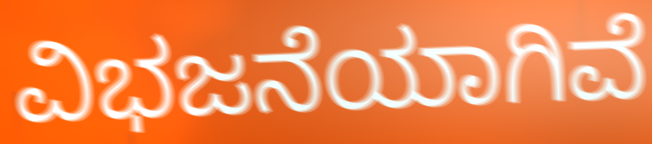
ವಿಭಜನೆಯಾಗಿವೆ